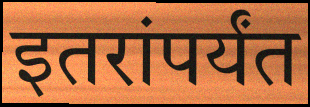
इतरांपर्यंत